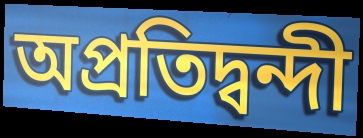
অপ্ৰতিদ্বন্দী